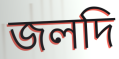
জলদি